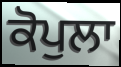
ਕੋਪੁਲਾ